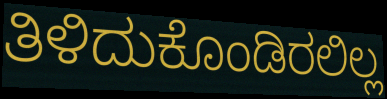
ತಿಳಿದುಕೊಂಡಿರಲಿಲ್ಲ